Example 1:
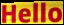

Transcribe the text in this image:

Hello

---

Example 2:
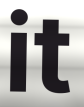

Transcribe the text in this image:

it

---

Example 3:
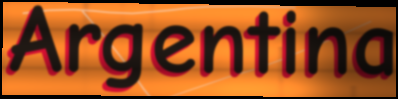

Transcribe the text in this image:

Argentina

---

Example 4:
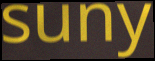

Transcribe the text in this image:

suny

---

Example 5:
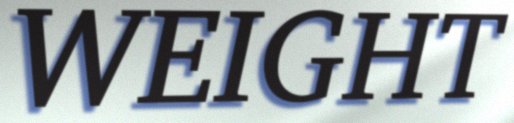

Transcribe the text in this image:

WEIGHT